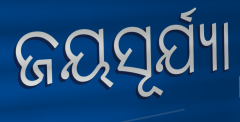
ଜୟସୂର୍ଯ୍ୟା